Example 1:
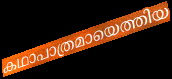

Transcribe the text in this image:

കഥാപാത്രമായെത്തിയ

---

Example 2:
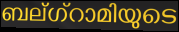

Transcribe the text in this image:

ബല്ഗ്റാമിയുടെ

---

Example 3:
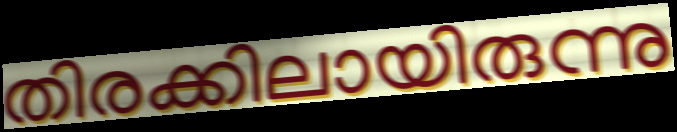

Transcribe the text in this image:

തിരക്കിലായിരുന്നു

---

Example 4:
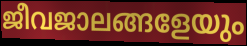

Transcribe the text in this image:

ജീവജാലങ്ങളേയും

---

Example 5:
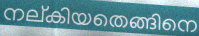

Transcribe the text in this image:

നല്കിയതെങ്ങിനെ